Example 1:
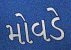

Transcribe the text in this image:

મોવડે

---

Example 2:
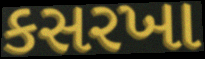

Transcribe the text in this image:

કસરખા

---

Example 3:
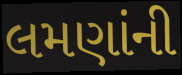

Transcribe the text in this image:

લમણાંની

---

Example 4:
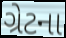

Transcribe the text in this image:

ગ્રેટના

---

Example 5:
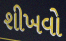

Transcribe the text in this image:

શીખવો